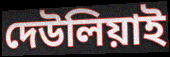
দেউলিয়াই